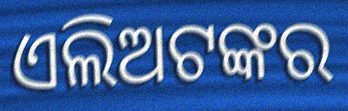
ଏଲିଅଟଙ୍କର